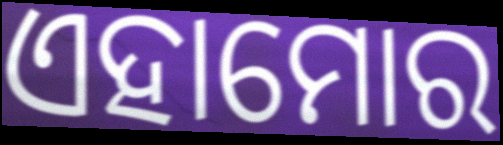
ଏହାମୋର